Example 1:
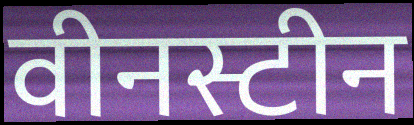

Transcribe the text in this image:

वीनस्टीन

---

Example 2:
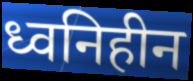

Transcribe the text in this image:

ध्वनिहीन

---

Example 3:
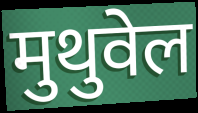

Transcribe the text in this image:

मुथुवेल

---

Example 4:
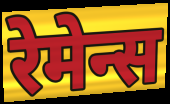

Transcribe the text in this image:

रेमेन्स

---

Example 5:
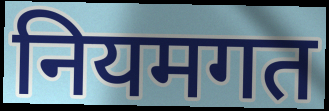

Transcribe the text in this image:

नियमगत